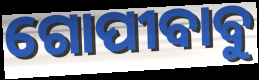
ଗୋପୀବାବୁ